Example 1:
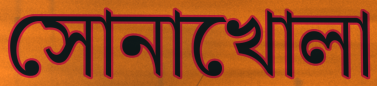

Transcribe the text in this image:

সোনাখোলা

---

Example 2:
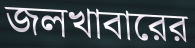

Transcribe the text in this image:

জলখাবারের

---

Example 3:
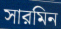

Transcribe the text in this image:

সারমিন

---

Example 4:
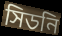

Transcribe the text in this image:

সিডনি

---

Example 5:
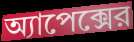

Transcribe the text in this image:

অ্যাপেক্সের